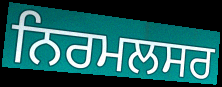
ਨਿਰਮਲਸਰ